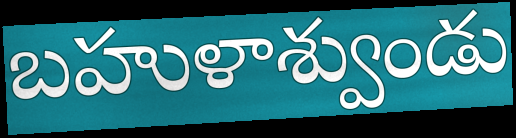
బహుళాశ్వుండు